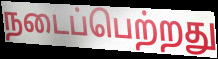
நடைப்பெற்றது